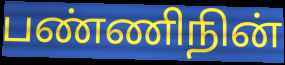
பண்ணிநின்